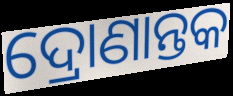
ଦ୍ରୋଣାନ୍ତକ